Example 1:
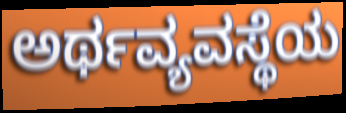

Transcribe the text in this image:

ಅರ್ಥವ್ಯವಸ್ಥೆಯ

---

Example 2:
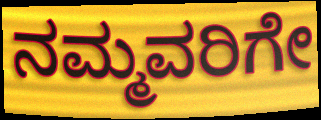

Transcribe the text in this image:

ನಮ್ಮವರಿಗೇ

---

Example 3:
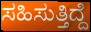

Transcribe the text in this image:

ಸಹಿಸುತ್ತಿದ್ದೆ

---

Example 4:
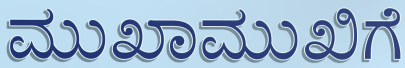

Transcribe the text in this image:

ಮುಖಾಮುಖಿಗೆ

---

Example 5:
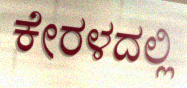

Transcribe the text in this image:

ಕೇರಳದಲ್ಲಿ